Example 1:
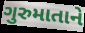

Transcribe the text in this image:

ગુરુમાતાને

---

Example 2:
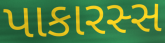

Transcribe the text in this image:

પાકારસ્સ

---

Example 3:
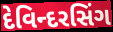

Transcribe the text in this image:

દેવિન્દરસિંગ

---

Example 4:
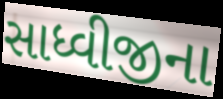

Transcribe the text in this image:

સાધ્વીજીના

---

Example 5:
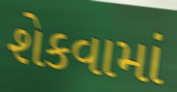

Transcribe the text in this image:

શેકવામાં